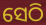
ସେଠି